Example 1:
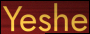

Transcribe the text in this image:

Yeshe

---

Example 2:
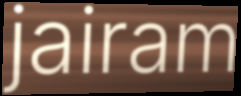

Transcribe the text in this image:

jairam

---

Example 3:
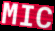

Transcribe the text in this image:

MIC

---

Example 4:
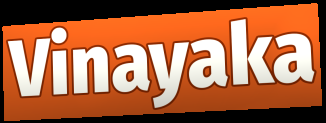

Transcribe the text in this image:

Vinayaka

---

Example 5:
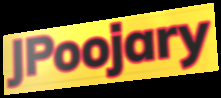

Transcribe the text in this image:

JPoojary